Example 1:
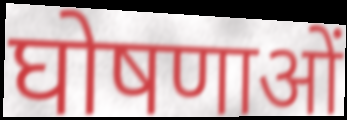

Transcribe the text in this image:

घोषणाओं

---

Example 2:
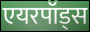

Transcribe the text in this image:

एयरपॉड्स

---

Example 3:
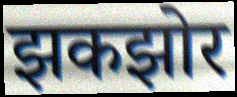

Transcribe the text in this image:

झकझोर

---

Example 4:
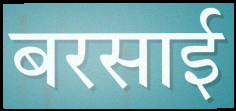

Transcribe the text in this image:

बरसाई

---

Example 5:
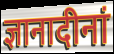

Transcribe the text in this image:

ज्ञानादीनां